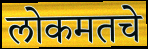
लोकमतचे